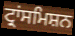
ਟ੍ਰਾਂਸਮਿਸ਼ਨ